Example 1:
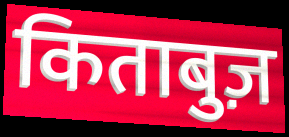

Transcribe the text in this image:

किताबुज़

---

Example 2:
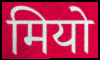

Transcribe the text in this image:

मियो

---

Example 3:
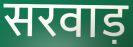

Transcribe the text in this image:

सरवाड़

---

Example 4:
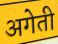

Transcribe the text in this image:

अगेती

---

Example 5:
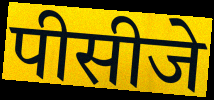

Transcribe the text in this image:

पीसीजे